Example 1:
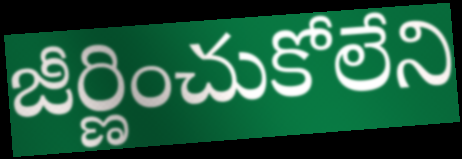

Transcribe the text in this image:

జీర్ణించుకోలేని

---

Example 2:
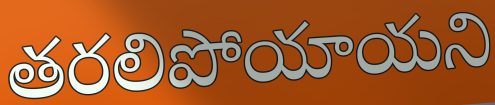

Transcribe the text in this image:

తరలిపోయాయని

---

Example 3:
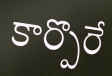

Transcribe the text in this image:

కార్పొరే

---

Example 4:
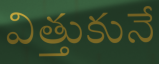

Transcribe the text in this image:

విత్తుకునే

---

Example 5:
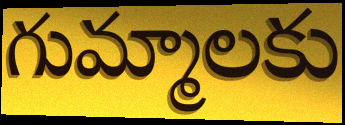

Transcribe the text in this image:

గుమ్మాలకు